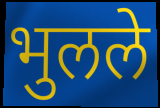
भुलले